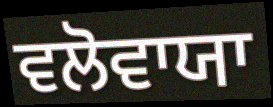
ਵਲੋਵਾਯਾ